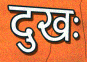
दुखः